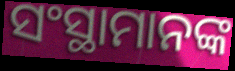
ସଂସ୍ଥାମାନଙ୍କ